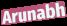
Arunabh